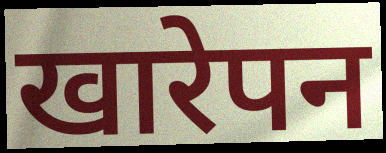
खारेपन